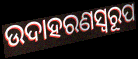
ଉଦାହରଣସ୍ୱରୂପ